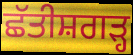
ਛੱਤੀਸ਼ਗੜ੍ਹ